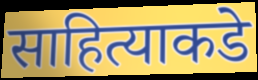
साहित्याकडे